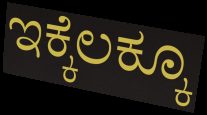
ಇಕ್ಕೆಲಕ್ಕೂ